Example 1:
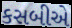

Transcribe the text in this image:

કસબીએ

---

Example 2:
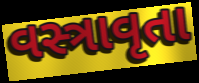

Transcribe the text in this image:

વસ્ત્રાવૃતા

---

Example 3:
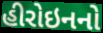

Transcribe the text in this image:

હીરોઇનનો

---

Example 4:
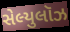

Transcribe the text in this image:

સેલ્યુલૉઝ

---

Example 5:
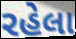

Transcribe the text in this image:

રહેલા